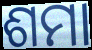
ଶମା